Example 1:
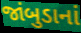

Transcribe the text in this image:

જાંબુડાનાં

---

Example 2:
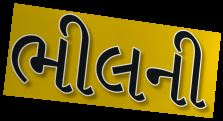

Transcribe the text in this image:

ભીલની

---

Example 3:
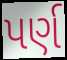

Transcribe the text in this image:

પર્ણ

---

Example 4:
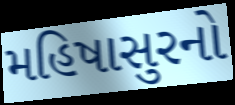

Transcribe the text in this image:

મહિષાસુરનો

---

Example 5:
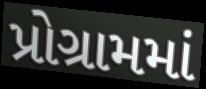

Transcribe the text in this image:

પ્રોગ્રામમાં